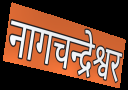
नागचन्द्रेश्वर